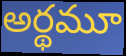
అర్థమూ